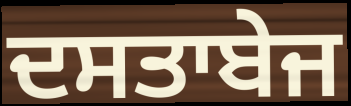
ਦਸਤਾਬੇਜ